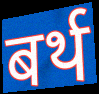
बर्थ